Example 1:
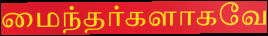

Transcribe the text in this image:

மைந்தர்களாகவே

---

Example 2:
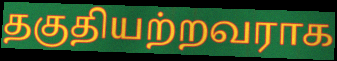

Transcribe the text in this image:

தகுதியற்றவராக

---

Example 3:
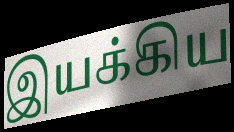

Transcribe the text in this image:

இயக்கிய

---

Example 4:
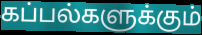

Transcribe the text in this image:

கப்பல்களுக்கும்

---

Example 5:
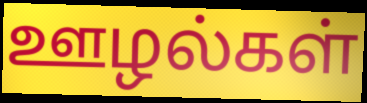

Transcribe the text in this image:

ஊழல்கள்